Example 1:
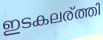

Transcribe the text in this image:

ഇടകലര്ത്തി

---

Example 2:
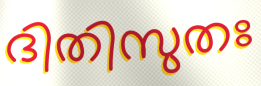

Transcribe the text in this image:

ദിതിസുതഃ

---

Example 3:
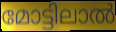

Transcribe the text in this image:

മോട്ടിലാൽ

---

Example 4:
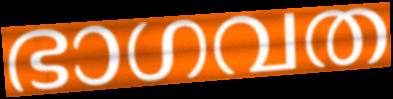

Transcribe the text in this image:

ഭാഗവത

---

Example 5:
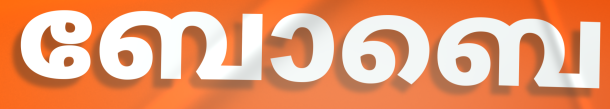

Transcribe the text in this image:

ബോബെ